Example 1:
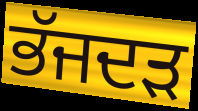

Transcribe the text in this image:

ਭੱਜਦੜ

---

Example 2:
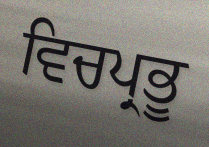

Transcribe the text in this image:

ਵਿਚਪ੍ਰਭੂ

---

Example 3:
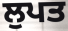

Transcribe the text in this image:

ਲੁਪਤ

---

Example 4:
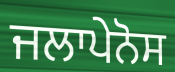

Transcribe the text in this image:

ਜਲਾਪੇਨੋਸ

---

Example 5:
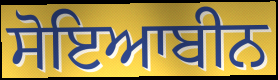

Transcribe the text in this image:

ਸੋਇਆਬੀਨ